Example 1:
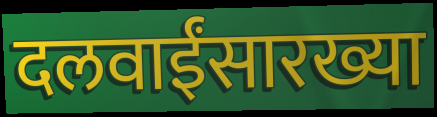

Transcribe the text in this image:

दलवाईंसारख्या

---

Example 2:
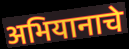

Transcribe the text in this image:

अभियानाचे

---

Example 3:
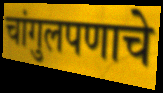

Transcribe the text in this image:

चांगुलपणाचे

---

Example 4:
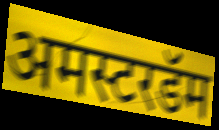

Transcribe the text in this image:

अमस्टरडॅम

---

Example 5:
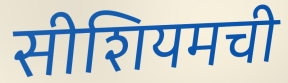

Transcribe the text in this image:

सीशियमची